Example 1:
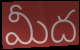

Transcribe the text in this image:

మీద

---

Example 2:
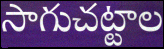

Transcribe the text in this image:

సాగుచట్టాల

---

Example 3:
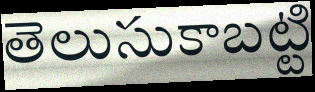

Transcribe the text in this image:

తెలుసుకాబట్టి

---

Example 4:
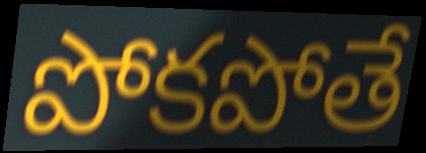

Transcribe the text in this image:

పోకపోతే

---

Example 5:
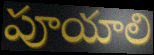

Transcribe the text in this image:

పూయాలి